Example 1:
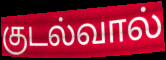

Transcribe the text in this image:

குடல்வால்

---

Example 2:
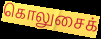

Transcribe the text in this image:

கொலுசைக்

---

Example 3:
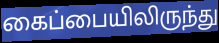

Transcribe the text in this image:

கைப்பையிலிருந்து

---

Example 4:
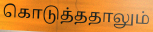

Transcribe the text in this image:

கொடுத்ததாலும்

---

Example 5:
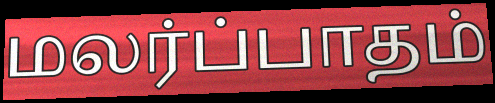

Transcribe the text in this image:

மலர்ப்பாதம்